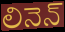
లినెన్